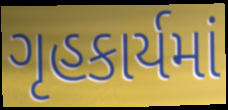
ગૃહકાર્યમાં